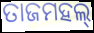
ତାଜମହଲ୍